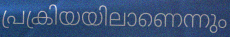
പ്രക്രിയയിലാണെന്നും